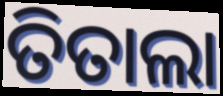
ତିତାଲା